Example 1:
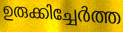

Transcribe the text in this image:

ഉരുക്കിച്ചേർത്ത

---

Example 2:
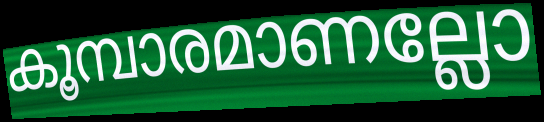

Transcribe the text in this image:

കൂമ്പാരമാണല്ലോ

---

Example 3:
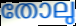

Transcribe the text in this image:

തോലു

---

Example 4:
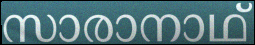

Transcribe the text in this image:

സാരാനാഥ്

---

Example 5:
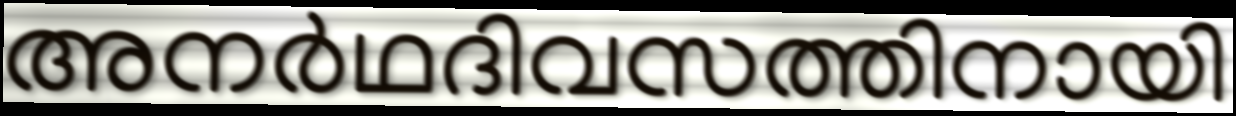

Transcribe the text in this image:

അനർഥദിവസത്തിനായി